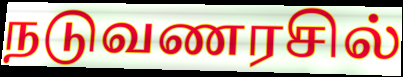
நடுவணரசில்